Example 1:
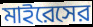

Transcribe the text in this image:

মাইরেসের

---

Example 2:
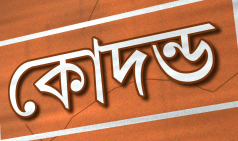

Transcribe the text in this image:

কোদন্ড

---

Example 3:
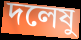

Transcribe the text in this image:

দলেষু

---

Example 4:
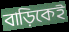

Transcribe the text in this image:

বাড়িকেই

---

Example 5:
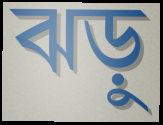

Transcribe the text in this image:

ঝড়ু